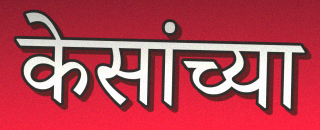
केसांच्या